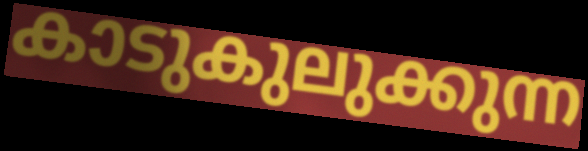
കാടുകുലുക്കുന്ന